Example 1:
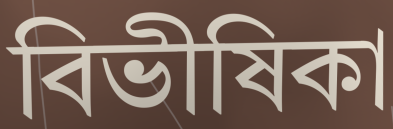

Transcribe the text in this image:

বিভীষিকা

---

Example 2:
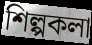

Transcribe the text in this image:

শিল্পকলা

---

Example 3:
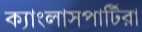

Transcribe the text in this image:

ক্যাংলাসপার্টিরা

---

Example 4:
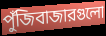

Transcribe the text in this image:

পুঁজিবাজারগুলো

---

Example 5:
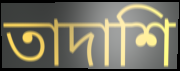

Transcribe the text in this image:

তাদাশি